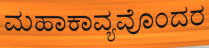
ಮಹಾಕಾವ್ಯವೊಂದರ